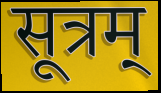
सूत्रम्